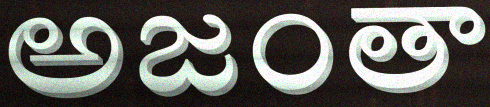
అజంతా